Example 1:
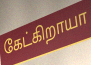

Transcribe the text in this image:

கேட்கிறாயா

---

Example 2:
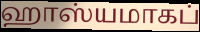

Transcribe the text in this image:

ஹாஸ்யமாகப்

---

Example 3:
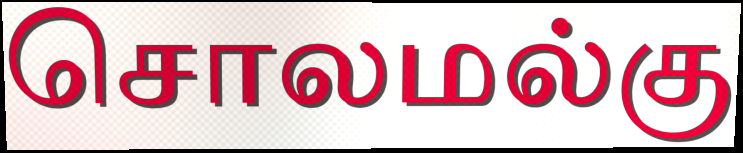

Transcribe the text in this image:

சொலமல்கு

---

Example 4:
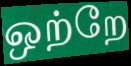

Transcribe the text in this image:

ஒற்றே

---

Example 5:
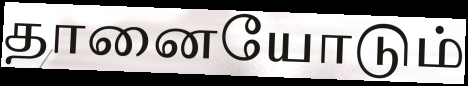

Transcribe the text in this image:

தானையோடும்